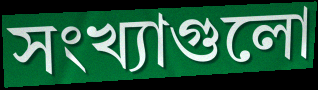
সংখ্যাগুলো